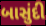
બાસુંદી